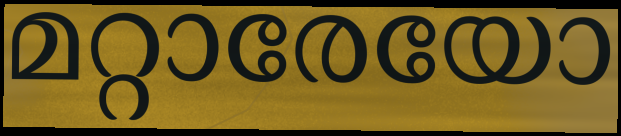
മറ്റാരേയോ